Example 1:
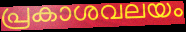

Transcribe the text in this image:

പ്രകാശവലയം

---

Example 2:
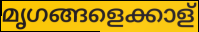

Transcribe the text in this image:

മൃഗങ്ങളെക്കാള്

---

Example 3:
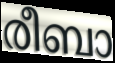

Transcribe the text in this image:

രീബാ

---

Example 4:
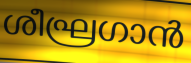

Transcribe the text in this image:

ശീഘ്രഗാൻ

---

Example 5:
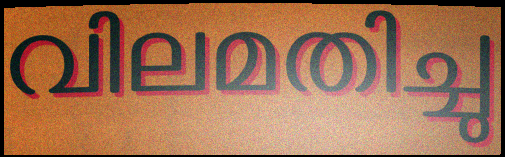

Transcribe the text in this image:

വിലമതിച്ചു